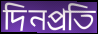
দিনপ্রতি